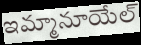
ఇమ్మానూయేల్